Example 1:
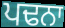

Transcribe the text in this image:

ਪਢਨਾ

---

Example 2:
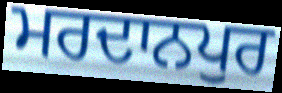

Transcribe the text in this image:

ਮਰਦਾਨਪੁਰ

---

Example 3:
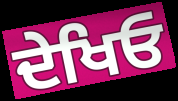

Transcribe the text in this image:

ਦੇਖਿਓ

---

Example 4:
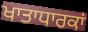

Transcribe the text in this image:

ਖਾਤਾਧਾਰਕਾਂ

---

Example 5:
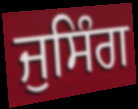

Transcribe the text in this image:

ਜੁਸਿੰਗ